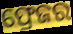
ଫ୍ରେଜର